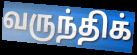
வருந்திக்